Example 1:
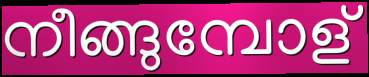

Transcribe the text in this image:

നീങ്ങുമ്പോള്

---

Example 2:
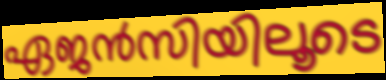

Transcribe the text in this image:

ഏജൻസിയിലൂടെ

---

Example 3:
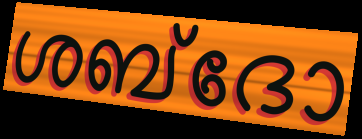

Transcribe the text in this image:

ശബ്ദോ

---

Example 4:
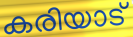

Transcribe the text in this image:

കരിയാട്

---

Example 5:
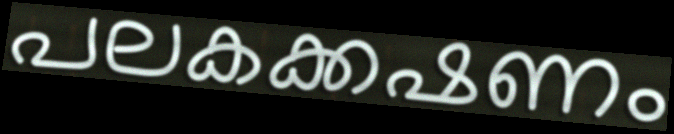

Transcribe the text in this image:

പലകക്കഷണം